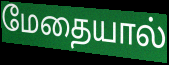
மேதையால்